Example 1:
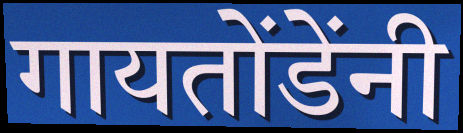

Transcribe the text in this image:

गायतोंडेंनी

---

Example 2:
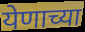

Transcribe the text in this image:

येणाच्या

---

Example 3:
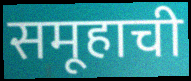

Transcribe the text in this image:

समूहाची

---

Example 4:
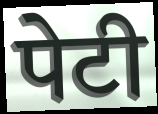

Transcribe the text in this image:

पेटी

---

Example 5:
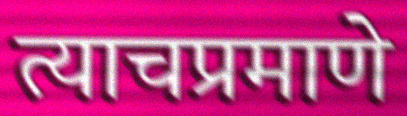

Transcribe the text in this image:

त्याचप्रमाणे